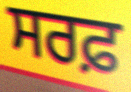
ਸਰਫ਼